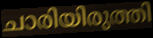
ചാരിയിരുത്തി